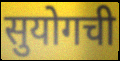
सुयोगची